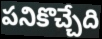
పనికొచ్చేది